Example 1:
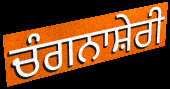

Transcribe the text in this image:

ਚੰਗਨਾਸ਼ੇਰੀ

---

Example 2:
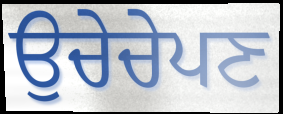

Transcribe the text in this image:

ਉਚੇਚੇਪਣ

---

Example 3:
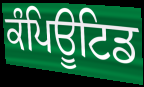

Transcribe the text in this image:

ਕੰਪਿਊਟਿਡ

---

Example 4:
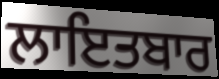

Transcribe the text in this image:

ਲਾਇਤਬਾਰ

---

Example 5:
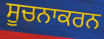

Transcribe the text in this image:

ਸੂਚਨਾਕਰਨ